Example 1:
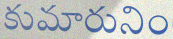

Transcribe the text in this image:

కుమారునిం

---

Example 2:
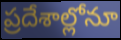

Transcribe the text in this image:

ప్రదేశాల్లోనూ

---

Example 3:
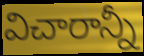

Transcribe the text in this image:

విచారాన్నీ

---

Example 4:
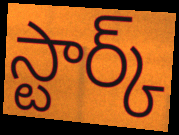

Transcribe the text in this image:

స్టార్క్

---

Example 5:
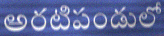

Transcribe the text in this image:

అరటిపండులో